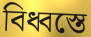
বিধ্বস্তে